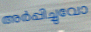
അർപ്പിച്ചുവോ